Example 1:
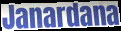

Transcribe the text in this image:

Janardana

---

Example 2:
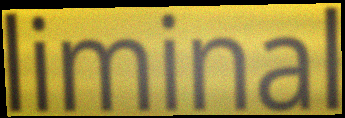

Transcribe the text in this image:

liminal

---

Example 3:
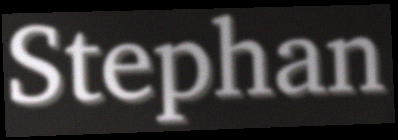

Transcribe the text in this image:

Stephan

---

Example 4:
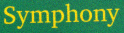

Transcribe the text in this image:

Symphony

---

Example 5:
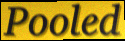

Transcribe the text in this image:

Pooled